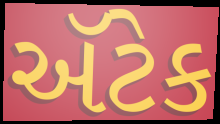
ઍટેક